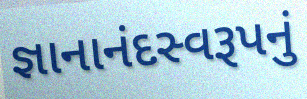
જ્ઞાનાનંદસ્વરૂપનું